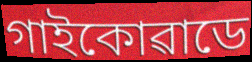
গাইকোৱাডে